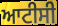
ਆਟੀਸੀ